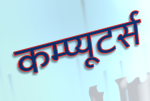
कम्प्यूटर्स